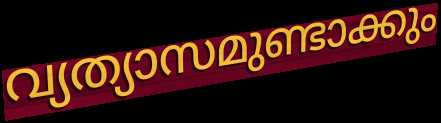
വ്യത്യാസമുണ്ടാക്കും